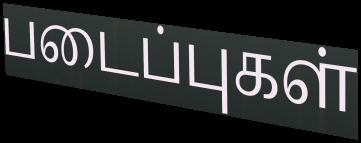
படைப்புகள்